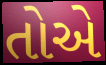
તોએ